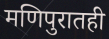
मणिपुरातही